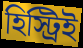
হিস্ট্রিই